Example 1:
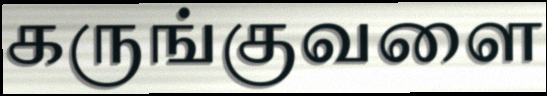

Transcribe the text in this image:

கருங்குவளை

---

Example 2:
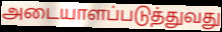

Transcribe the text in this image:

அடையாளப்படுத்துவது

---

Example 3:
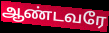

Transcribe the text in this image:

ஆண்டவரே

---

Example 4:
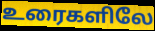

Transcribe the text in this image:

உரைகளிலே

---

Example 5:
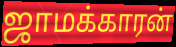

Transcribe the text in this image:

ஜாமக்காரன்